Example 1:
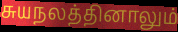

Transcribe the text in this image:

சுயநலத்தினாலும்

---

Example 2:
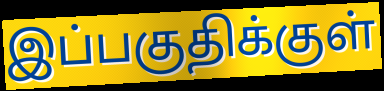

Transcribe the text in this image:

இப்பகுதிக்குள்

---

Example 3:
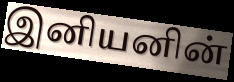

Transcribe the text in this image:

இனியனின்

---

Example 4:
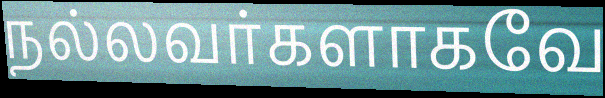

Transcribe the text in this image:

நல்லவர்களாகவே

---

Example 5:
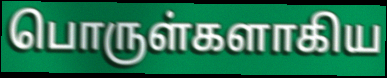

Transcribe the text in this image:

பொருள்களாகிய